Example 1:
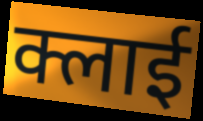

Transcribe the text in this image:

क्लाई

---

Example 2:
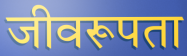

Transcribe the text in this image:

जीवरूपता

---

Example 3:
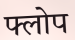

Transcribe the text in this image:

फ्लोप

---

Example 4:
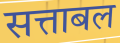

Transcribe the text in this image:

सत्ताबल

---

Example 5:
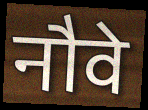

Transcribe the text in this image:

नौवे